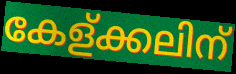
കേള്ക്കലിന്